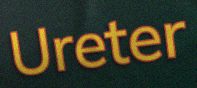
Ureter